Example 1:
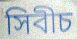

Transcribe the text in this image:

সিবীচ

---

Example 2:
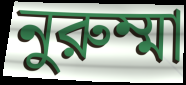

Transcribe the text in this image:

নুরুম্মা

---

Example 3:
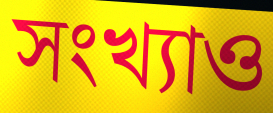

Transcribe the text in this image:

সংখ্যাও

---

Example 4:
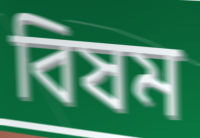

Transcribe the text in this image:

বিষম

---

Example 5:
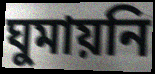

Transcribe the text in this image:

ঘুমায়নি